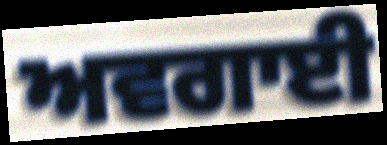
ਅਵਗਾਈ